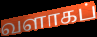
வளாகப்